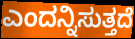
ಎಂದನ್ನಿಸುತ್ತದೆ